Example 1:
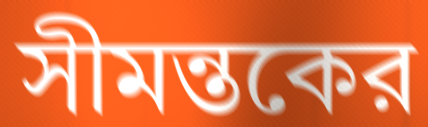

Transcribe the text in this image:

সীমন্তকের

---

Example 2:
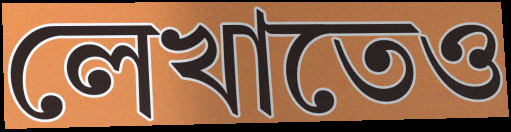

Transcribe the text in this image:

লেখাতেও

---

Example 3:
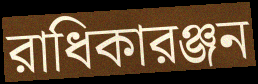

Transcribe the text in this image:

রাধিকারঞ্জন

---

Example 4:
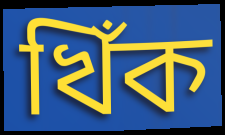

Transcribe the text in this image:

খিঁক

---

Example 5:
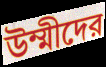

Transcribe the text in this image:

উম্মীদের